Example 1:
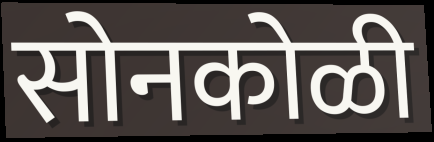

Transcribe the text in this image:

सोनकोळी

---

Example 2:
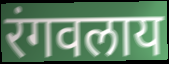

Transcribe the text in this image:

रंगवलाय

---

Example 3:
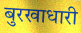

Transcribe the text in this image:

बुरखाधारी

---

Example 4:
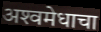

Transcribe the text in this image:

अश्‍वमेधाचा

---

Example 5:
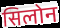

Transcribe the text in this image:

सिलोन